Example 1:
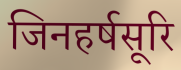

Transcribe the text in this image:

जिनहर्षसूरि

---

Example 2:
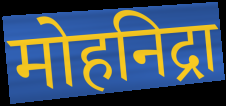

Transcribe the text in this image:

मोहनिद्रा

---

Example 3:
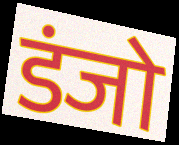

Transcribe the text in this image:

डंजो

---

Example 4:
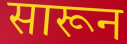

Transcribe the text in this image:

सारून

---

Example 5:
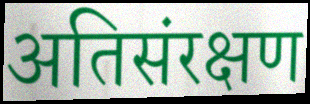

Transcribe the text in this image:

अतिसंरक्षण